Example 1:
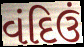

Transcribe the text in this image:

વંદિઉં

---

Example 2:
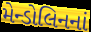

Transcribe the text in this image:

મેન્ડોલિનનાં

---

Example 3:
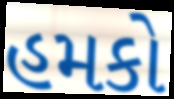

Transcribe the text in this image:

હમકો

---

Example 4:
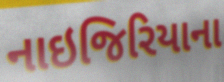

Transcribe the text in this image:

નાઇજિરિયાના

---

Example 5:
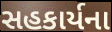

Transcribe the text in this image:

સહકાર્યના